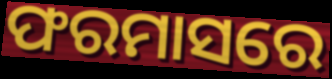
ଫରମାସରେ